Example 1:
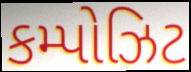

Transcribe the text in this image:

કમ્પોઝિટ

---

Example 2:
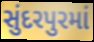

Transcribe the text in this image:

સુંદરપુરમાં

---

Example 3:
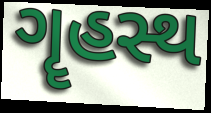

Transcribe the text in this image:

ગૄહસ્થ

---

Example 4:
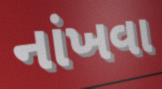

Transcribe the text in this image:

નાંખવા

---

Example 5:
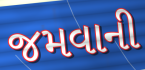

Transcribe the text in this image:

જમવાની